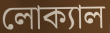
লোক্যাল